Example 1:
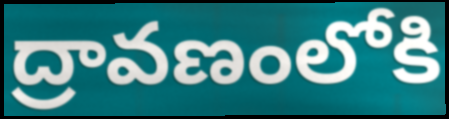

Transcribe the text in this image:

ద్రావణంలోకి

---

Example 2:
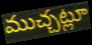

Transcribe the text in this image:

ముచ్చట్లూ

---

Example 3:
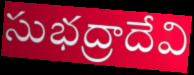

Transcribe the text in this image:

సుభద్రాదేవి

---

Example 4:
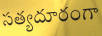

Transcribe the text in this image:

సత్యదూరంగా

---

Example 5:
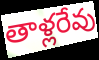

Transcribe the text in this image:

తాళ్లరేవు